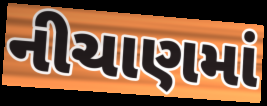
નીચાણમાં